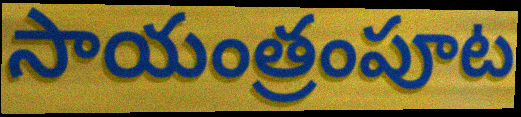
సాయంత్రంపూట